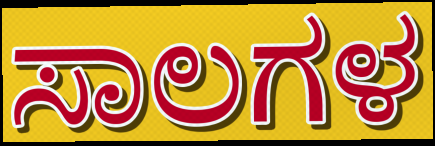
ಸಾಲಗಳ